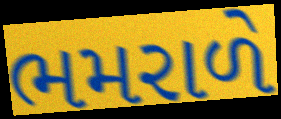
ભમરાળે